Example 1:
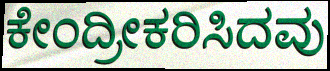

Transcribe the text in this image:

ಕೇಂದ್ರೀಕರಿಸಿದವು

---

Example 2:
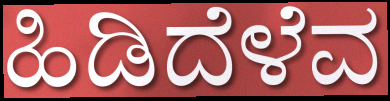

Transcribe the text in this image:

ಹಿಡಿದೆಳೆವ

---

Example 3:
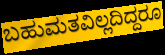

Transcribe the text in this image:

ಬಹುಮತವಿಲ್ಲದಿದ್ದರೂ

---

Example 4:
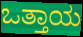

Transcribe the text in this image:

ಒತ್ತಾಯ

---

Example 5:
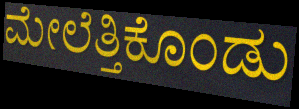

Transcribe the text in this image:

ಮೇಲೆತ್ತಿಕೊಂಡು